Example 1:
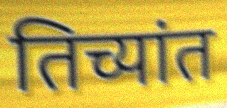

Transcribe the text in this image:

तिच्यांत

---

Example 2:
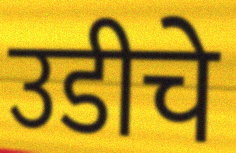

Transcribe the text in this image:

उडीचे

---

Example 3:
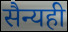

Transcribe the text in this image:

सैन्यही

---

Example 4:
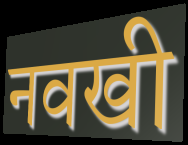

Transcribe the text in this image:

नवखी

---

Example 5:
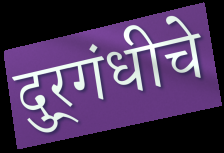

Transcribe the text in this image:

दुर्गंधीचे